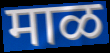
माळ